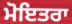
ਮੋਇਤਰਾ